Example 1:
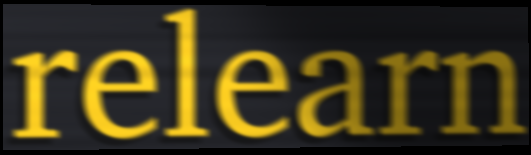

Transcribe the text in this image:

relearn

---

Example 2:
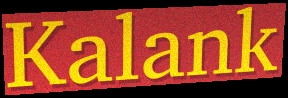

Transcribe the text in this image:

Kalank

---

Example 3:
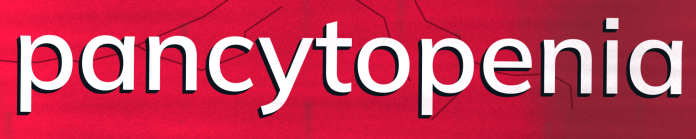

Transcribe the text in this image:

pancytopenia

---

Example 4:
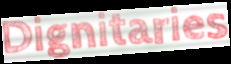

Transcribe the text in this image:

Dignitaries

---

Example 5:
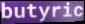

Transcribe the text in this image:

butyric